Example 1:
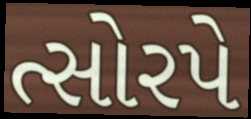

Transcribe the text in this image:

ત્સોરપે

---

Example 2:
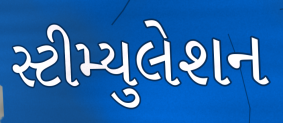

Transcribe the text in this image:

સ્ટીમ્યુલેશન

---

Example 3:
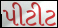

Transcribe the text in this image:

પીટીટ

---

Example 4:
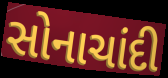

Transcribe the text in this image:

સોનાચાંદી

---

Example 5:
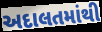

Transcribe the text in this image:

અદાલતમાંથી